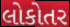
લોકોતર